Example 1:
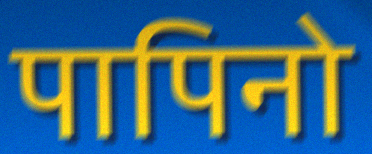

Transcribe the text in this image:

पापिनो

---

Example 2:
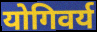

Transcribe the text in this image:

योगिवर्य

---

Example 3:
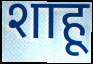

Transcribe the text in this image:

शाहू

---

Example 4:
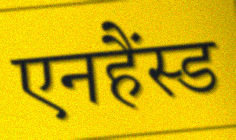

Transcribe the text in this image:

एनहैंस्ड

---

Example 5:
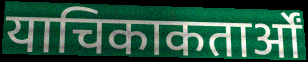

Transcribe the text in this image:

याचिकाकतार्ओं